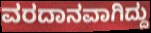
ವರದಾನವಾಗಿದ್ದು